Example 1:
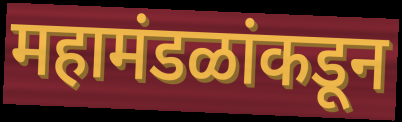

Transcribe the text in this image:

महामंडळांकडून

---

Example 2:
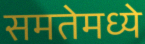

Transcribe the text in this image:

समतेमध्ये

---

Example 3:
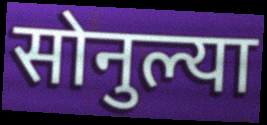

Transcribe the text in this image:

सोनुल्या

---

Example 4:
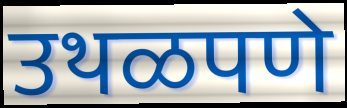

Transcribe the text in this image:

उथळपणे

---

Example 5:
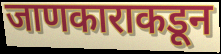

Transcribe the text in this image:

जाणकाराकडून